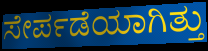
ಸೇರ್ಪಡೆಯಾಗಿತ್ತು